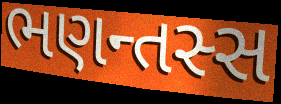
ભણન્તસ્સ